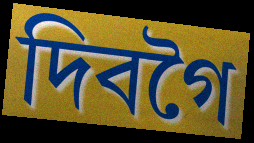
দিবগৈ